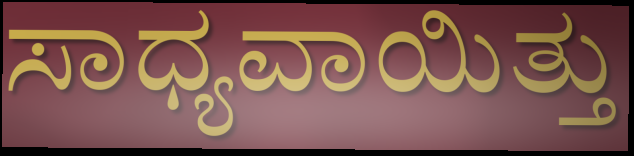
ಸಾಧ್ಯವಾಯಿತ್ತು